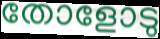
തോളോടു